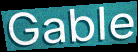
Gable